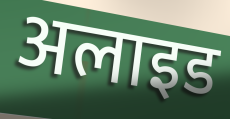
अलाइड